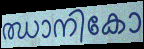
ഝാനികോ